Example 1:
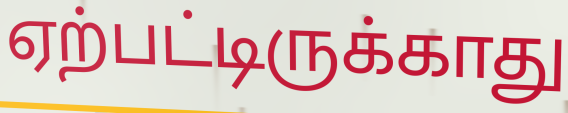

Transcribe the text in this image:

ஏற்பட்டிருக்காது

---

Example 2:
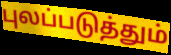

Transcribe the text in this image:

புலப்படுத்தும்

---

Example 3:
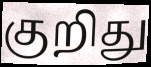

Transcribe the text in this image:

குறிது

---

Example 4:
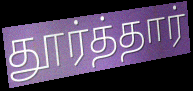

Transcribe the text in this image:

தூர்த்தார்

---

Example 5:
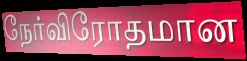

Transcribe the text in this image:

நேர்விரோதமான